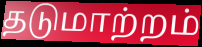
தடுமாற்றம்